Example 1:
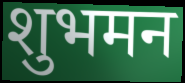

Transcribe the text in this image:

शुभमन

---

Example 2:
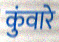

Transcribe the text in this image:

कुंवारे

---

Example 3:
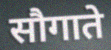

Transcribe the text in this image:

सौगाते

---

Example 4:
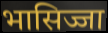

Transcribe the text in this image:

भासिज्जा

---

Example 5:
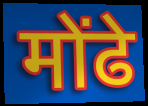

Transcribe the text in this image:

मोंढे